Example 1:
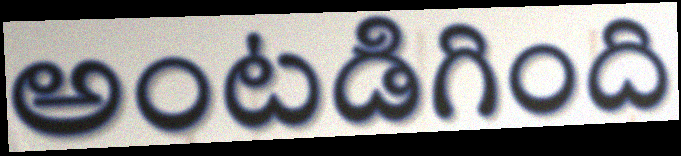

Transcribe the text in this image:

అంటడిగింది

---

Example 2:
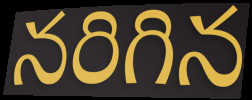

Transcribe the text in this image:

నరిగిన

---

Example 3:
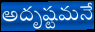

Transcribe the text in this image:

అదృష్టమనే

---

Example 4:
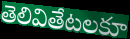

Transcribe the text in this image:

తెలివితేటలకూ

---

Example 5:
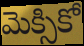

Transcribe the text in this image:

మెక్సికో